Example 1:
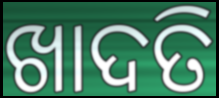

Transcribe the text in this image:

ଖାଦତି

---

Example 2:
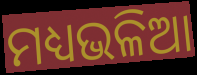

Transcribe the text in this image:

ମଧ୍ୟଭଳିଆ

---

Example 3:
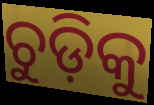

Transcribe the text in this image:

ଚୁଡ଼ିକୁ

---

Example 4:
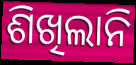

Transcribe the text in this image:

ଶିଖିଲାନି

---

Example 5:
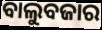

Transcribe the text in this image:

ବାଲୁବଜାର